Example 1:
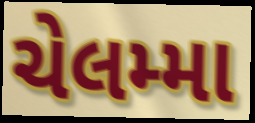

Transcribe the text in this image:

ચેલમ્મા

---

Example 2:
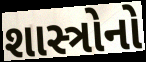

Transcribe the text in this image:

શાસ્ત્રોનો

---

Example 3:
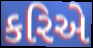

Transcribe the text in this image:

કરિએ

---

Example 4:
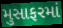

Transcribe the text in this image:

મુસાફરમાં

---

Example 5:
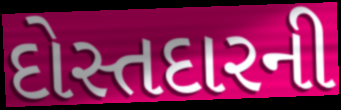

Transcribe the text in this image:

દોસ્તદારની